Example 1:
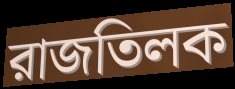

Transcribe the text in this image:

রাজতিলক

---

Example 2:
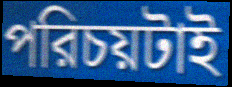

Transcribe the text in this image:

পরিচয়টাই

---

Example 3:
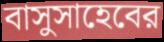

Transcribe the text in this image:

বাসুসাহেবের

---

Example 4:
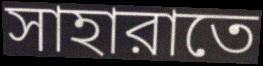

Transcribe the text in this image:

সাহারাতে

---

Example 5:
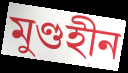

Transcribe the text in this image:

মুণ্ডহীন